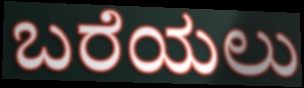
ಬರೆಯಲು